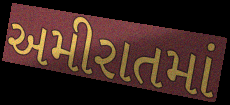
અમીરાતમાં